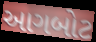
આગબોટ